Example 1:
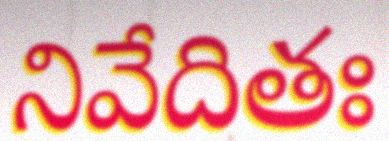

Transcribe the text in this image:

నివేదితః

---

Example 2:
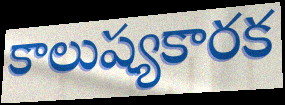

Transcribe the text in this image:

కాలుష్యకారక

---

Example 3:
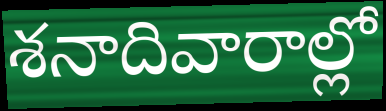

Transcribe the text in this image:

శనాదివారాల్లో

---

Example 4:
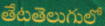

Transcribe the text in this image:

తేటతెలుగులో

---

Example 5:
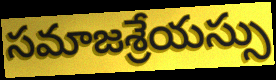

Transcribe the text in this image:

సమాజశ్రేయస్సు